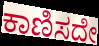
ಕಾಣಿಸದೇ